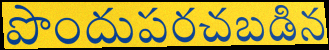
పొందుపరచబడిన